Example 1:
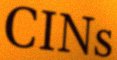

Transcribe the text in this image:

CINs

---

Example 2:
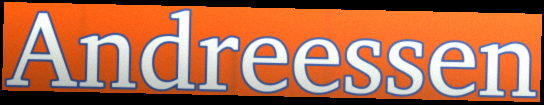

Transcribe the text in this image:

Andreessen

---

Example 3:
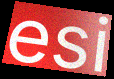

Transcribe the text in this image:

esi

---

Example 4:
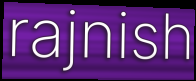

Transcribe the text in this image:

rajnish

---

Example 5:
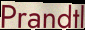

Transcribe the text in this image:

Prandtl